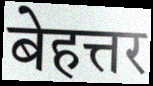
बेहत्तर